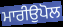
ਮਾਰੀਉਪੋਲ